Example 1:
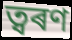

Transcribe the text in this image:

ত্বৰণ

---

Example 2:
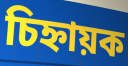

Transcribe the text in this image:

চিহ্নায়ক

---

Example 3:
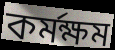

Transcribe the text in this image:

কৰ্মক্ষম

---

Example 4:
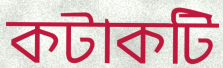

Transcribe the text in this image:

কটাকটি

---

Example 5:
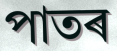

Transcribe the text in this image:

পাতৰ